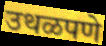
उथळपणे